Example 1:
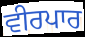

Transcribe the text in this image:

ਵੀਰਪਾਰ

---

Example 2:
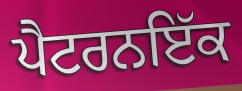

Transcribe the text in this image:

ਪੈਟਰਨਇੱਕ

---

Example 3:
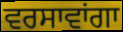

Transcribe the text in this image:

ਵਰਸਾਵਾਂਗਾ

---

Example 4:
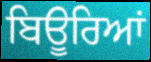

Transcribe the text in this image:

ਬਿਊਰਿਆਂ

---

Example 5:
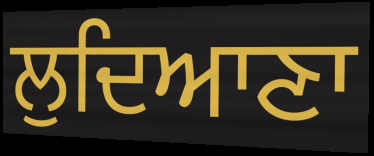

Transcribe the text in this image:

ਲੁਦਿਆਣਾ